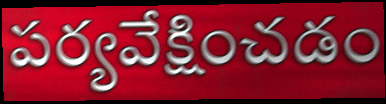
పర్యవేక్షించడం